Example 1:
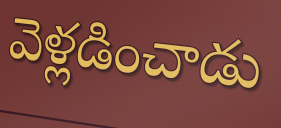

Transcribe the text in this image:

వెళ్లడించాడు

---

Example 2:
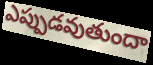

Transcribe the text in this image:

ఎప్పుడవుతుందా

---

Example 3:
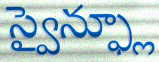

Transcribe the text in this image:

స్వైన్ఫ్లూ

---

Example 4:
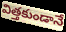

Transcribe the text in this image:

విత్తకుండానే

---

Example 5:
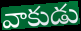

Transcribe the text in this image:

వాకుడు